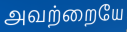
அவற்றையே